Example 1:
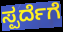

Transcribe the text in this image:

ಸ್ಪರ್ದೆಗೆ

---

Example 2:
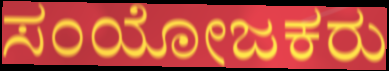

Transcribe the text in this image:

ಸಂಯೋಜಕರು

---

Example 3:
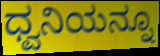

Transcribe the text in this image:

ಧ್ವನಿಯನ್ನೂ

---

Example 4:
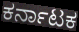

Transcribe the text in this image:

ಕರ್ನಾಟಕ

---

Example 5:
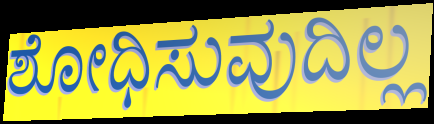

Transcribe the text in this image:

ಶೋಧಿಸುವುದಿಲ್ಲ